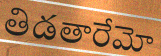
తిడతారేమో